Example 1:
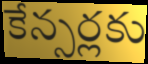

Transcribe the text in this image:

కేన్సర్లకు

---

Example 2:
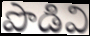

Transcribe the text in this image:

పొడివి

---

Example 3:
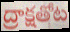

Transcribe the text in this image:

ద్రాక్షతోట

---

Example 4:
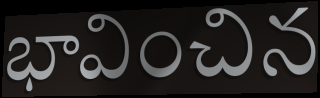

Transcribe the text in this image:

భావించిన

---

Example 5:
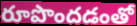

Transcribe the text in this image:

రూపొందడంతో